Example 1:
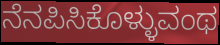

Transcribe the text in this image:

ನೆನಪಿಸಿಕೊಳ್ಳುವಂಥ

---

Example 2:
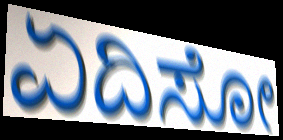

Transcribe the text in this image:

ಏದಿಸೋ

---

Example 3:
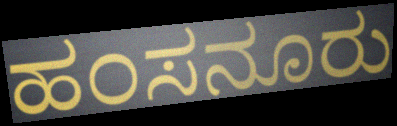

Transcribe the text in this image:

ಹಂಸನೂರು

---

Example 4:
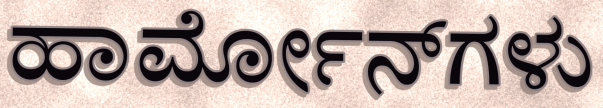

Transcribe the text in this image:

ಹಾರ್ಮೋನ್‌ಗಳು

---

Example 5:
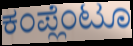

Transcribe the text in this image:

ಕಂಪ್ಲೆಂಟೂ